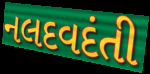
નલદવદંતી